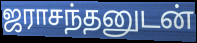
ஜராசந்தனுடன்